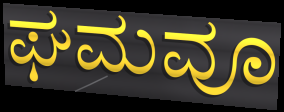
ಘಮವೂ